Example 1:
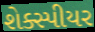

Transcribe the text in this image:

શેક્સ્પીયર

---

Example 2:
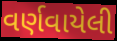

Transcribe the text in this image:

વર્ણવાયેલી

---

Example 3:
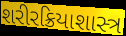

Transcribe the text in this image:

શરીરક્રિયાશાસ્ત્ર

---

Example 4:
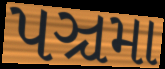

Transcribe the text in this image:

પઞ્ચમા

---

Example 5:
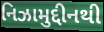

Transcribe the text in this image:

નિઝામુદ્દીનથી